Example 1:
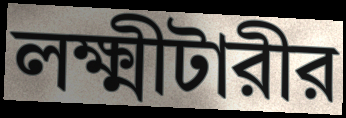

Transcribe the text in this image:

লক্ষ্মীটারীর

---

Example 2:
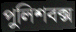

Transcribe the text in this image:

পুলিশবক্স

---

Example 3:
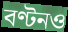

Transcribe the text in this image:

বণ্টনও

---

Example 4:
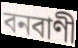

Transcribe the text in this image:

বনবাণী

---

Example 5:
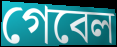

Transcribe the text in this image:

গেবেল